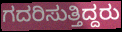
ಗದರಿಸುತ್ತಿದ್ದರು